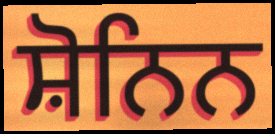
ਸ਼ੋਨਿਨ